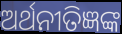
ଅର୍ଥନୀତିଜ୍ଞଙ୍କ